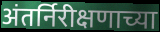
अंतर्निरीक्षणाच्या